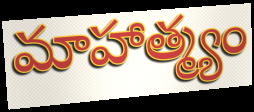
మాహాత్మ్యం